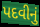
પદવીનું